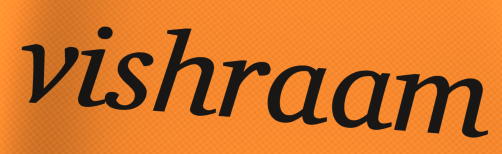
vishraam